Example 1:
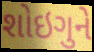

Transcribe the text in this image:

શોઇગુને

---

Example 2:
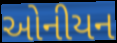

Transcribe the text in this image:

ઓનીયન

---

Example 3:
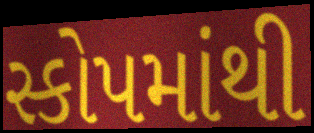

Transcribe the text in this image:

સ્કોપમાંથી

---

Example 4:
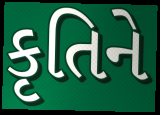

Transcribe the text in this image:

કૃતિને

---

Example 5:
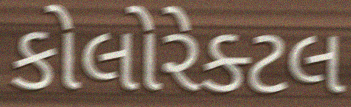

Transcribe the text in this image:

કોલોરેક્ટલ